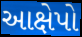
આક્ષેપો